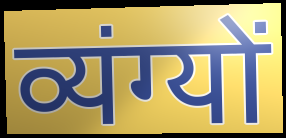
व्यंग्यों